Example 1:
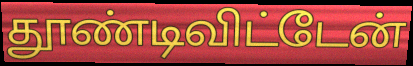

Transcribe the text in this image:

தூண்டிவிட்டேன்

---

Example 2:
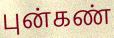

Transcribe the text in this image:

புன்கண்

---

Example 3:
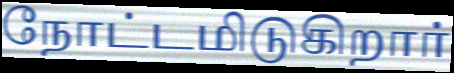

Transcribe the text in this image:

நோட்டமிடுகிறார்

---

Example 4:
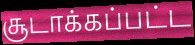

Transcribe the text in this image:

சூடாக்கப்பட்ட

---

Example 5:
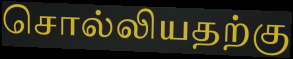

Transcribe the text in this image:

சொல்லியதற்கு